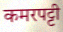
कमरपट्टी